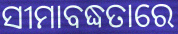
ସୀମାବଦ୍ଧତାରେ